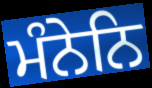
ਮੰਨੇਨਿ